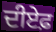
ਦੀਏਫ਼